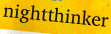
nightthinker